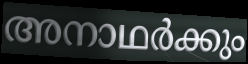
അനാഥർക്കും